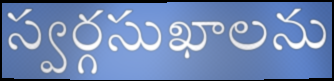
స్వర్గసుఖాలను